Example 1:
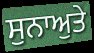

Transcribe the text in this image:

ਸੁਨਾਅੁਤੇ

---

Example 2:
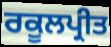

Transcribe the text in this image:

ਰਕੂਲਪ੍ਰੀਤ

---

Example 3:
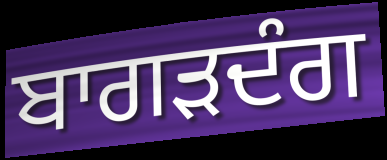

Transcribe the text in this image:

ਬਾਗੜਦੰਗ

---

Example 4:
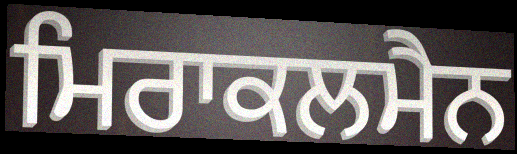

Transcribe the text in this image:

ਮਿਰਾਕਲਮੈਨ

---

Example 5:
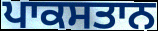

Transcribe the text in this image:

ਪਾਕਸਤਾਨ